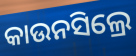
କାଉନସିଲ୍ରେ